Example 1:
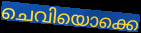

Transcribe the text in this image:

ചെവിയൊക്കെ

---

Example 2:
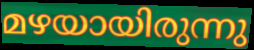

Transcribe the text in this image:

മഴയായിരുന്നു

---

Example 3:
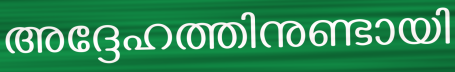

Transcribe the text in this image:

അദ്ദേഹത്തിനുണ്ടായി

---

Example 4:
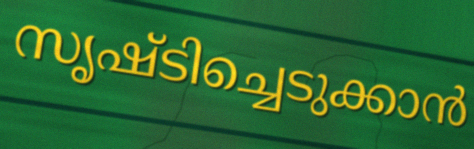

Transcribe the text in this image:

സൃഷ്ടിച്ചെടുക്കാൻ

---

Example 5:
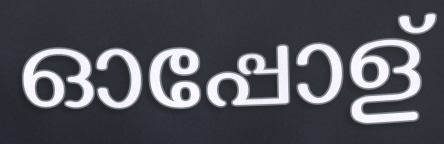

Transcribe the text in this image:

ഓപ്പോള്